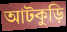
আটকুড়ি